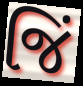
જિં